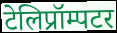
टेलिप्रॉम्पटर